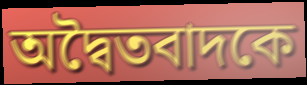
অদ্বৈতবাদকে